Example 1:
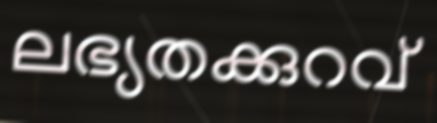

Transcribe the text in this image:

ലഭ്യതക്കുറവ്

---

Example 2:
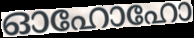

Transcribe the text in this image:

ഓഹോഹോ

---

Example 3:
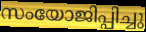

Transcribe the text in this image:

സംയോജിപ്പിച്ചു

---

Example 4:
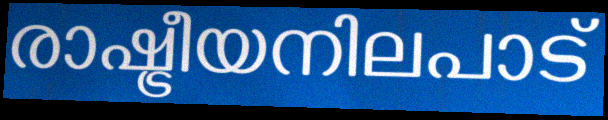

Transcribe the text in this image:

രാഷ്ട്രീയനിലപാട്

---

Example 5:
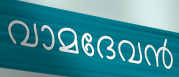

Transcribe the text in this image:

വാമദേവൻ